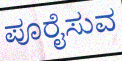
ಪೂರೈಸುವ